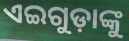
ଏଇଗୁଡ଼ାଙ୍କୁ